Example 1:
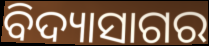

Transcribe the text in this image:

ବିଦ୍ୟାସାଗର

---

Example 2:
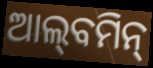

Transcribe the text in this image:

ଆଲ୍‌ବମିନ୍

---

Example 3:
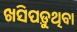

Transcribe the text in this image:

ଖସିପଡ଼ୁଥିବା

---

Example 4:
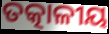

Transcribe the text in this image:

ତତ୍କାଳୀୟ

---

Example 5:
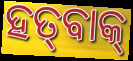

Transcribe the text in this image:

ହତ୍‌ବାକ୍